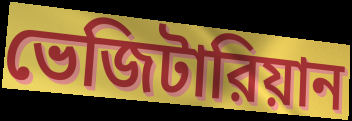
ভেজিটারিয়ান